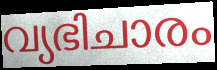
വ്യഭിചാരം